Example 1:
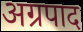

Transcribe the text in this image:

अग्रपाद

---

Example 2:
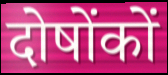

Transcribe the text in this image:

दोषोंकों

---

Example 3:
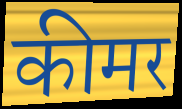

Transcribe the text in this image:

कीमर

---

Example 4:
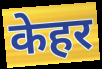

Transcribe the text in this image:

केहर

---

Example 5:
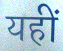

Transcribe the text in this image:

यहीं